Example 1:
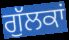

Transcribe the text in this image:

ਗੁੱਲਕਾਂ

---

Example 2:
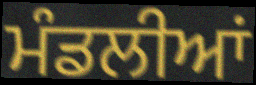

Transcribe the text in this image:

ਮੰਡਲੀਆਂ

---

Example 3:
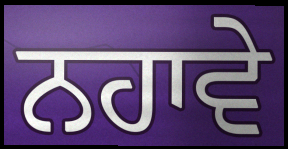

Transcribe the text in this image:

ਨਹਾਵੇ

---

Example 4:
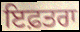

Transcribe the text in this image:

ਇਫ਼ਤਰਾ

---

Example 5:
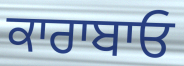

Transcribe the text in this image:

ਕਾਰਾਬਾਓ